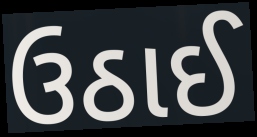
ઉઠાઈ